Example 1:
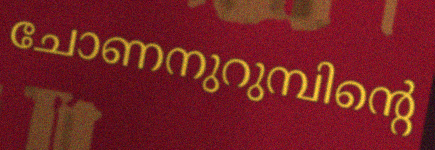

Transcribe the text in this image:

ചോണനുറുമ്പിന്റെ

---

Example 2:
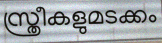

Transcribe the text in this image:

സ്ത്രീകളുമടക്കം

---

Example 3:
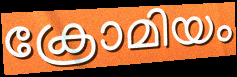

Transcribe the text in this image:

ക്രോമിയം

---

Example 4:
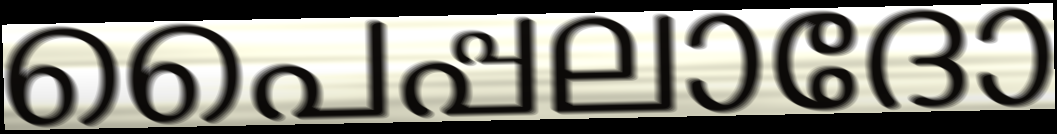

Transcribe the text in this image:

പൈപ്പലാദോ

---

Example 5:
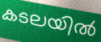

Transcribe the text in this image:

കടലയിൽ